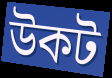
উকট